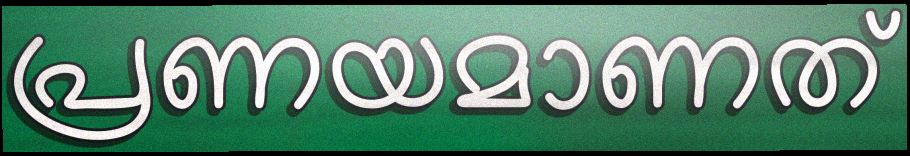
പ്രണയമാണത്